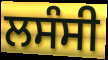
ਲਸੰਸੀ